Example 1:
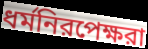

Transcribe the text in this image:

ধর্মনিরপেক্ষরা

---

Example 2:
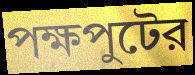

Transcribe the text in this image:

পক্ষপুটের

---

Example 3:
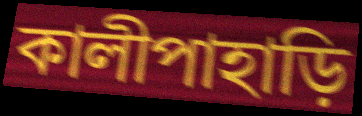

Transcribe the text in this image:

কালীপাহাড়ি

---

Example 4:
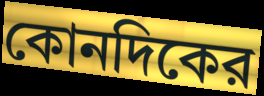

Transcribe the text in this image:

কোনদিকের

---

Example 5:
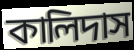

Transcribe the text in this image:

কালিদাস